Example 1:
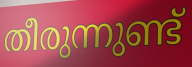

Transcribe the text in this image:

തീരുന്നുണ്ട്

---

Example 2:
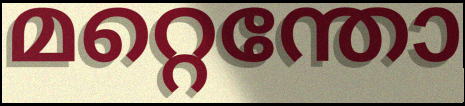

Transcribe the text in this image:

മറ്റെന്തോ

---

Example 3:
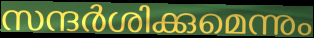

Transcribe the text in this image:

സന്ദർശിക്കുമെന്നും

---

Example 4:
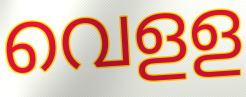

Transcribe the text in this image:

വെളള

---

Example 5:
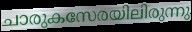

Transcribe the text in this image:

ചാരുകസേരയിലിരുന്നു